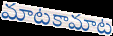
మాటకామాట